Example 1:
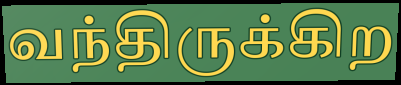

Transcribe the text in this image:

வந்திருக்கிற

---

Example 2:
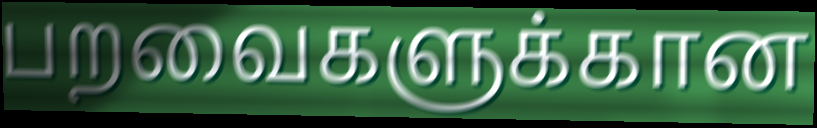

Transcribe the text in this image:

பறவைகளுக்கான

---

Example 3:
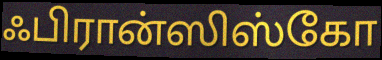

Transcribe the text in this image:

ஃபிரான்ஸிஸ்கோ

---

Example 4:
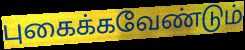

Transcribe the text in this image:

புகைக்கவேண்டும்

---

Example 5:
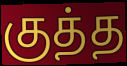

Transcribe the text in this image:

குத்த